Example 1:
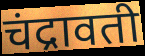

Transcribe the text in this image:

चंद्रावती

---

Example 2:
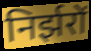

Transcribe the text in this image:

निर्झरों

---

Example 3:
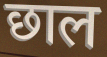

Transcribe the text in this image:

छाल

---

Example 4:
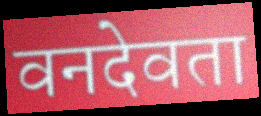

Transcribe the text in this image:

वनदेवता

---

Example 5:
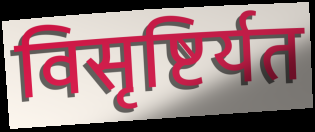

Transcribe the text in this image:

विसृष्टिर्यत